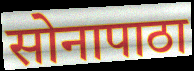
सोनापाठा